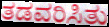
ತಡವರಿಸಿತು